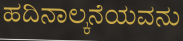
ಹದಿನಾಲ್ಕನೆಯವನು